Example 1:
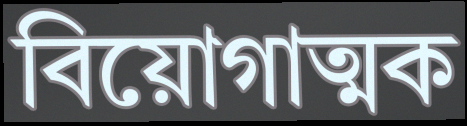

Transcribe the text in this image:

বিয়োগাত্মক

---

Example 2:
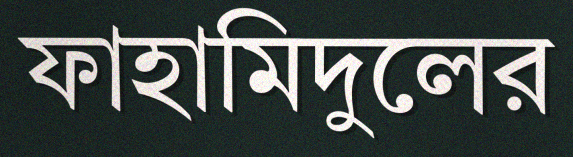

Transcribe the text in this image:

ফাহামিদুলের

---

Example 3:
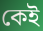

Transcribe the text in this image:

কেই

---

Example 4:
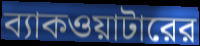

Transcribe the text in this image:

ব্যাকওয়াটারের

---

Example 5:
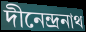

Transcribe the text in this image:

দীনেন্দ্রনাথ